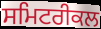
ਸਮਿਟਰੀਕਲ